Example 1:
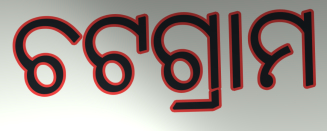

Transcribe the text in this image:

ଚଟଗ୍ରାମ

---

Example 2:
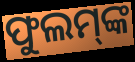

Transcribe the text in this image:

ଫୁଲମ୍‌ଙ୍କ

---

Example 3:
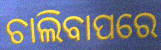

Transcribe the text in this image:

ଚାଲିବାପରେ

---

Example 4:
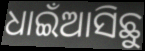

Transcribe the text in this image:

ଧାଇଁଆସିଛୁ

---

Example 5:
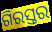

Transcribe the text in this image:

ଗିରସ୍ତର